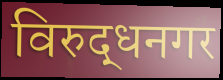
विरुद्धनगर